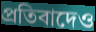
প্রতিবাদেও